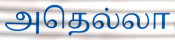
அதெல்லா